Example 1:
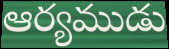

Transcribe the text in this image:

ఆర్యముడు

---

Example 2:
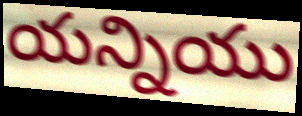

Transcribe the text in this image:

యన్నియు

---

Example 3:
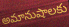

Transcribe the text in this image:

అమానుషాలకు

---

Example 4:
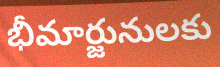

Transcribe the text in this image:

భీమార్జునులకు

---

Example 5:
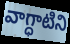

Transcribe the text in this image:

వాగ్ధాటిని